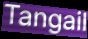
Tangail